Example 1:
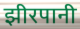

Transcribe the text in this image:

झीरपानी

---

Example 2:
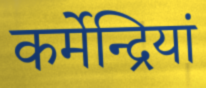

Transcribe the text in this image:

कर्मेन्द्रियां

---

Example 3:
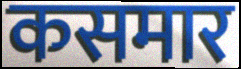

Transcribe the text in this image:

कसमार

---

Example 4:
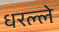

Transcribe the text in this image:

धरल्ले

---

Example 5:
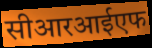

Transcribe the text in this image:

सीआरआईएफ